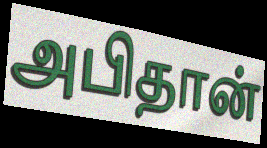
அபிதான்